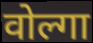
वोल्गा